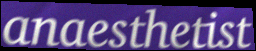
anaesthetist